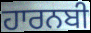
ਹਾਰਨਬੀ